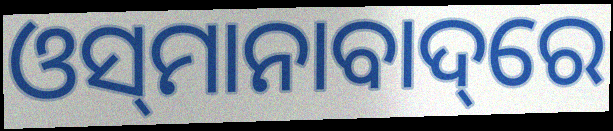
ଓସ୍‌ମାନାବାଦ୍‌ରେ